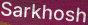
Sarkhosh